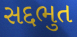
સદ્દભુત